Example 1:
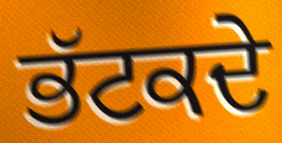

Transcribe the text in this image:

ਭੱਟਕਦੇ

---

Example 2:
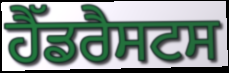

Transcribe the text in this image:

ਹੈੱਡਰੈਸਟਸ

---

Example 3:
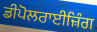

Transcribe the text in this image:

ਡੀਪੋਲਰਾਈਜ਼ਿੰਗ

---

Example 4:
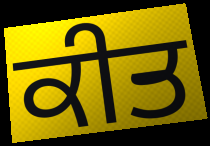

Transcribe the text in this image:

ਕੀਤ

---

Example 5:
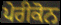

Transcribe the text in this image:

ਪੇਰੀਕੋਨ